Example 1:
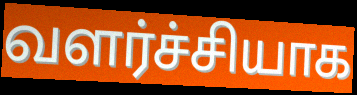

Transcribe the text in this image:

வளர்ச்சியாக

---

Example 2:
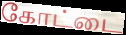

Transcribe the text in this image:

கோட்டை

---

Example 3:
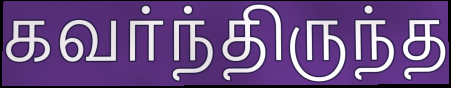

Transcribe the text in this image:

கவர்ந்திருந்த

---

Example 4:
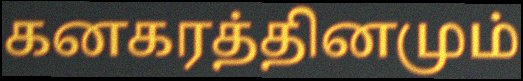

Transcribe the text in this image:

கனகரத்தினமும்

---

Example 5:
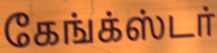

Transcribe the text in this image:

கேங்க்ஸ்டர்